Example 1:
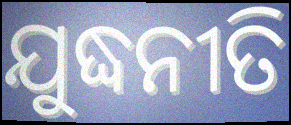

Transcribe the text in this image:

ଯୁଦ୍ଧନୀତି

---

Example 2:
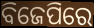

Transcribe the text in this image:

ବିଜେପିରେ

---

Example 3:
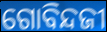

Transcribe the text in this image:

ଗୋବିନ୍ଦଜୀ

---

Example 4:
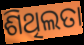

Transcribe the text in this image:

ଶିଥିଲତା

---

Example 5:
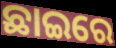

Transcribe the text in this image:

ଛାଇରେ